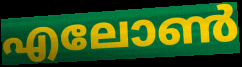
എലോൺ